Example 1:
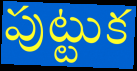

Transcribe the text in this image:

పుట్టుక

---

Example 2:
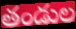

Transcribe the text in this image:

తండుల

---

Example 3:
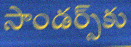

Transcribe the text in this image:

సాండర్స్‌కు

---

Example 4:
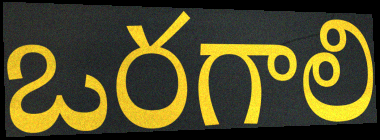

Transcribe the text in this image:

ఒరగాలి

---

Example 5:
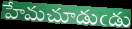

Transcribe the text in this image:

హేమచూడుఁడు